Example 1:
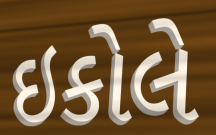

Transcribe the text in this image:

ઇકોલે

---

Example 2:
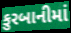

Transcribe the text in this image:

કુરબાનીમાં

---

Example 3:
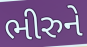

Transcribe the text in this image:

ભીરુને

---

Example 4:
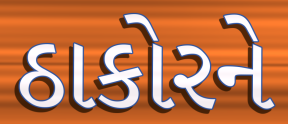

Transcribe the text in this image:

ઠાકોરને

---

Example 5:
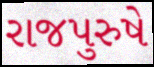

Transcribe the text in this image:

રાજપુરુષે